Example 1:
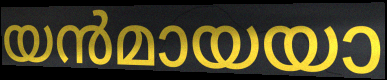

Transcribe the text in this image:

യൻമായയാ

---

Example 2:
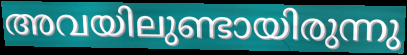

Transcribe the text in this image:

അവയിലുണ്ടായിരുന്നു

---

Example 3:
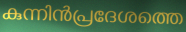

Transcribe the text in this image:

കുന്നിൻപ്രദേശത്തെ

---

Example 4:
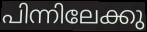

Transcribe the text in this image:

പിന്നിലേക്കു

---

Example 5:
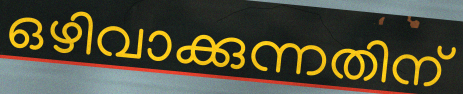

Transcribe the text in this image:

ഒഴിവാക്കുന്നതിന്